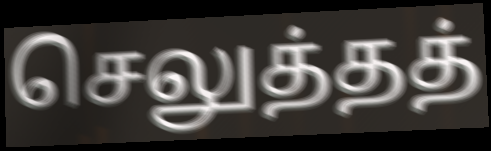
செலுத்தத்